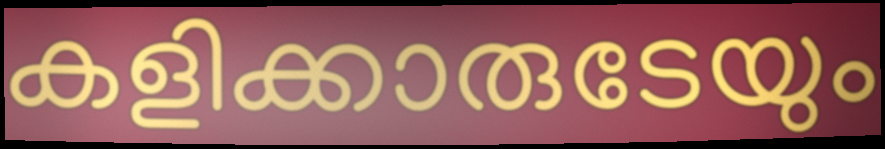
കളിക്കാരുടേയും